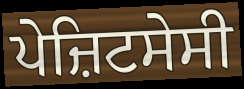
ਪੇਜ਼ਿਟਸੇਸੀ